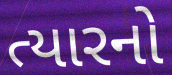
ત્યારનો